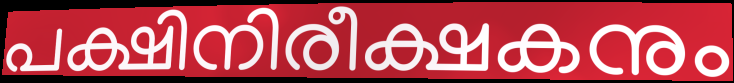
പക്ഷിനിരീക്ഷകനും